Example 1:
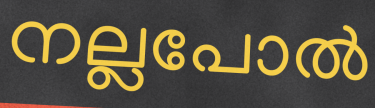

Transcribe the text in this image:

നല്ലപോൽ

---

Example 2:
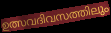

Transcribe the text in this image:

ഉത്സവദിവസത്തിലും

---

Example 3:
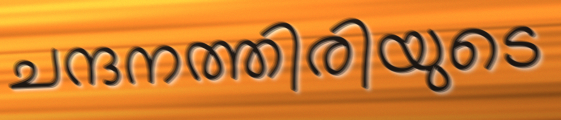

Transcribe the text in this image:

ചന്ദനത്തിരിയുടെ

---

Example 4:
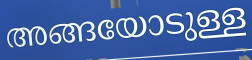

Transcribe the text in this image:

അങ്ങയോടുള്ള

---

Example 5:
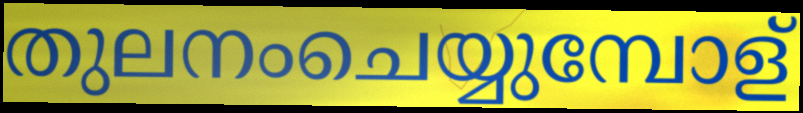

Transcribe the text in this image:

തുലനംചെയ്യുമ്പോള്